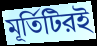
মূর্তিটিরই